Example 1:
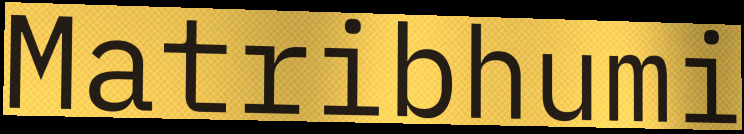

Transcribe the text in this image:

Matribhumi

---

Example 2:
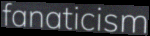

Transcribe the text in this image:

fanaticism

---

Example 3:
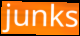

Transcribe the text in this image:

junks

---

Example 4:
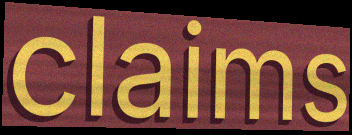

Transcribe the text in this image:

claims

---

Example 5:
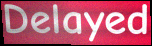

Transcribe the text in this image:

Delayed